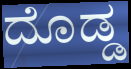
ದೊಡ್ಡ